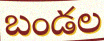
బండల